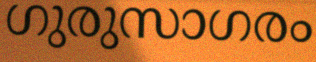
ഗുരുസാഗരം